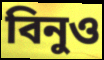
বিনুও